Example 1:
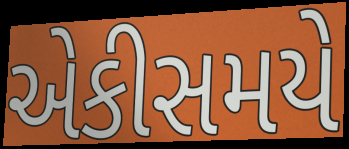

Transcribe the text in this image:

એકીસમયે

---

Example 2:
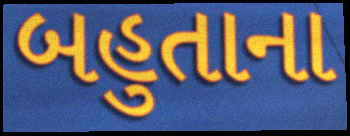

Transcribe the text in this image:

બહુતાના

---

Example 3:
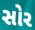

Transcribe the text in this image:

સોર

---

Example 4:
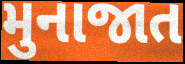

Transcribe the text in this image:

મુનાજાત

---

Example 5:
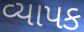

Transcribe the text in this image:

વ્યાપક